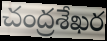
చంద్రశేఖర